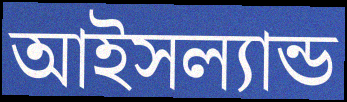
আইসল্যান্ড